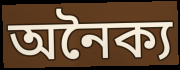
অনৈক্য